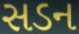
સડન